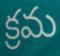
క్రమ